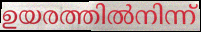
ഉയരത്തിൽനിന്ന്